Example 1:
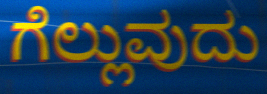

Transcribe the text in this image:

ಗೆಲ್ಲುವುದು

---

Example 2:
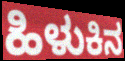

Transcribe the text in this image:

ಹಿಳುಕಿನ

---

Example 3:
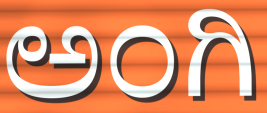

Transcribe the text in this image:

ಅಂಗಿ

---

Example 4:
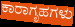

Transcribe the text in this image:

ಕಾರಾಗೃಹಗಳು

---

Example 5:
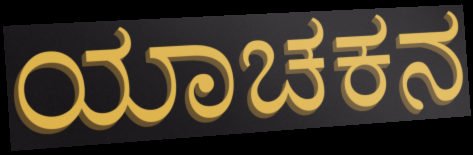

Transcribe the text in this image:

ಯಾಚಕನ